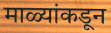
माळ्यांकडून